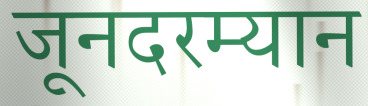
जूनदरम्यान